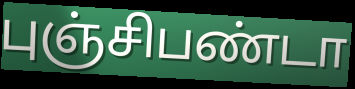
புஞ்சிபண்டா